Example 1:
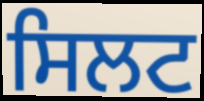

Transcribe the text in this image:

ਸਿਲਟ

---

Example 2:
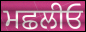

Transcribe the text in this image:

ਮਛਲੀਓ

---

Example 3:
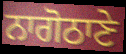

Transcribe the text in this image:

ਨਾਗੋਠਾਣੇ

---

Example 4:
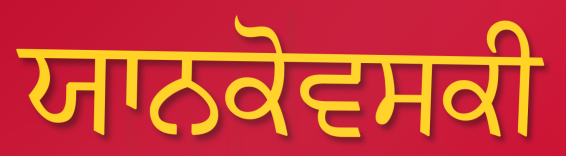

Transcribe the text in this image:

ਯਾਨਕੋਵਸਕੀ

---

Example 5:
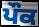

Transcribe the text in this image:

ਪੌਕ